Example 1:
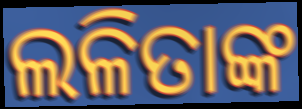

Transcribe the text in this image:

ଲଳିତାଙ୍କ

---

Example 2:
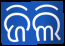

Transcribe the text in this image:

ଜିଲି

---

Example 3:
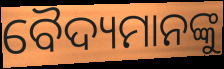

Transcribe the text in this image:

ବୈଦ୍ୟମାନଙ୍କୁ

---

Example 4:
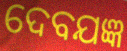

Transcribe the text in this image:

ଦେବଯଜ୍ଞ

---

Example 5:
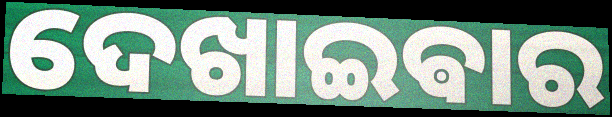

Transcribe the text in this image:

ଦେଖାଇଵାର